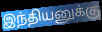
இந்தியனுக்கு